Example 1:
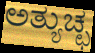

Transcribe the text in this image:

ಅತ್ಯುಚ್ಛ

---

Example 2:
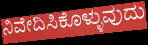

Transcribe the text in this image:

ನಿವೇದಿಸಿಕೊಳ್ಳುವುದು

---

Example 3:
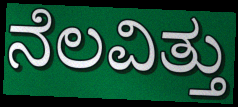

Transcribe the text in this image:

ನೆಲವಿತ್ತು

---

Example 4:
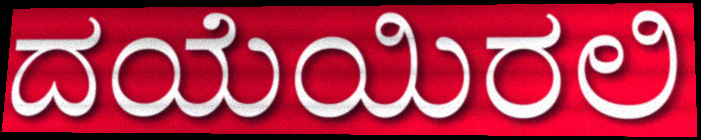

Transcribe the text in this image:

ದಯೆಯಿರಲಿ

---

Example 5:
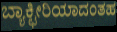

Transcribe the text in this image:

ಬ್ಯಾಕ್ಟೀರಿಯಾದಂತಹ